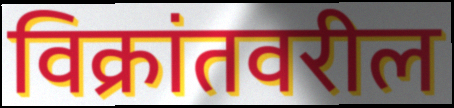
विक्रांतवरील